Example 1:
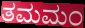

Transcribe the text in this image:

ತಮಮಂ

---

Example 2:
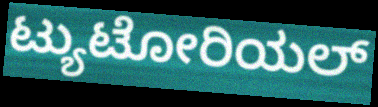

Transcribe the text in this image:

ಟ್ಯುಟೋರಿಯಲ್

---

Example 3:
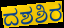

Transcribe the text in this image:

ದಶಶಿರ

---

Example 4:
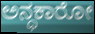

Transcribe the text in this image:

ಅನ್ಧಕಾರೋ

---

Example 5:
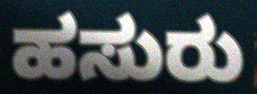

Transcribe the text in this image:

ಹಸುರು